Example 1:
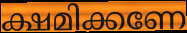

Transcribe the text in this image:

ക്ഷമിക്കണേ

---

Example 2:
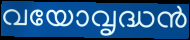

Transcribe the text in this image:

വയോവൃദ്ധൻ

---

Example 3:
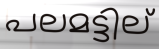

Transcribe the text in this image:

പലമട്ടില്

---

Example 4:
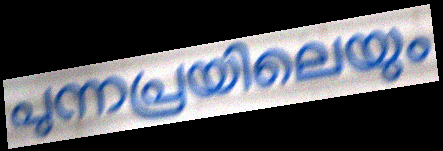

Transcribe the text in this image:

പുന്നപ്രയിലെയും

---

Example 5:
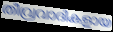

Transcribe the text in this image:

തീവ്രവാദികളായ